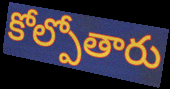
కోల్పోతారు